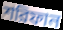
শরিফান